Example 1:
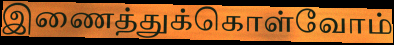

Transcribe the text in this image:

இணைத்துக்கொள்வோம்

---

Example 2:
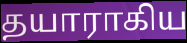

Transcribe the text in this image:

தயாராகிய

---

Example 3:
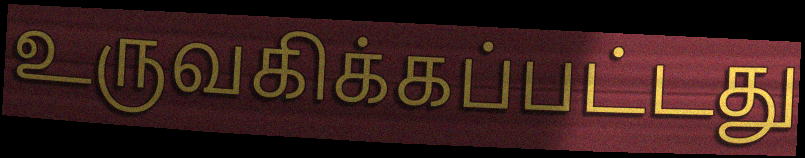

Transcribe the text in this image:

உருவகிக்கப்பட்டது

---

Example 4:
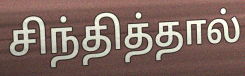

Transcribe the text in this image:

சிந்தித்தால்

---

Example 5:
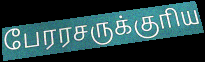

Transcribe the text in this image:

பேரரசருக்குரிய